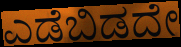
ಎಡೆಬಿಡದೇ